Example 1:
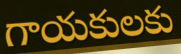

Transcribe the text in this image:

గాయకులకు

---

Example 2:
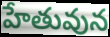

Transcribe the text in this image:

హేతువున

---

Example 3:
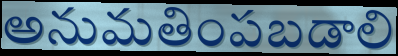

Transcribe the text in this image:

అనుమతింపబడాలి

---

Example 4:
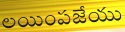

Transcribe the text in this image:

లయింపజేయు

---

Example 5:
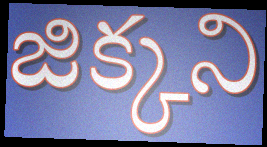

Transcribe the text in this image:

జిక్కని